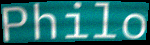
Philo